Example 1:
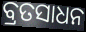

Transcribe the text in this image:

ବ୍ରତସାଧନ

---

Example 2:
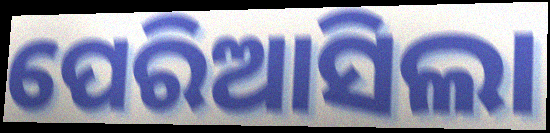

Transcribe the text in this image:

ପେରିଆସିଲା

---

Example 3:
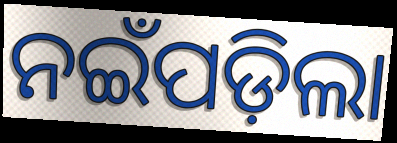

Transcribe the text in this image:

ନଇଁପଡ଼ିଲା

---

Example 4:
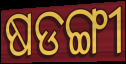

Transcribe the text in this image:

ଷଡଙ୍ଗୀ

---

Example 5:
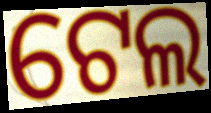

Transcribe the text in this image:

ଟେଲ